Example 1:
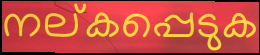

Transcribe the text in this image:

നല്കപ്പെടുക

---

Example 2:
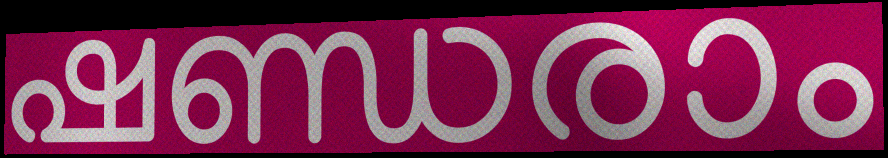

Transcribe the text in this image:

ഷണ്ഡരാം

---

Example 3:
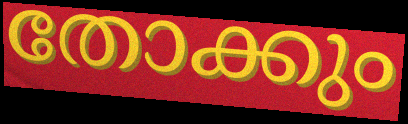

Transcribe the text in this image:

തോക്കും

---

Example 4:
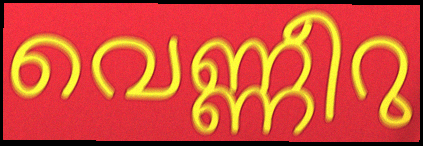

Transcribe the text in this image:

വെണ്ണീറു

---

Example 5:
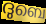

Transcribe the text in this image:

ദുബെ